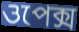
ওপেক্স